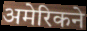
अमेरिकने